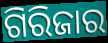
ଗିରିଜାର